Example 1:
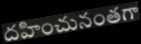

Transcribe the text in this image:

దహించునంతగా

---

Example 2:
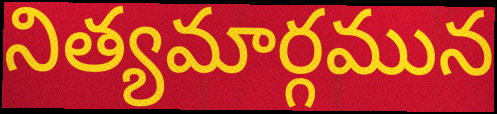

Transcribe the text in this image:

నిత్యమార్గమున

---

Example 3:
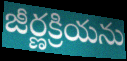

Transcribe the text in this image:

జీర్ణక్రియను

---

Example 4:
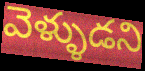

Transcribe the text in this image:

వెళ్ళుడని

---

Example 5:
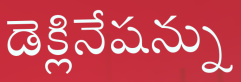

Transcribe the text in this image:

డెక్లినేషన్ను